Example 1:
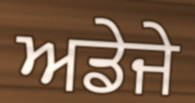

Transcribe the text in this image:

ਅਡੇਜੇ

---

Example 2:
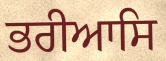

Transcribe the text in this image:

ਭਰੀਆਸਿ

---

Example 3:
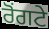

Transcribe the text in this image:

ਰੋੰਗਟੇ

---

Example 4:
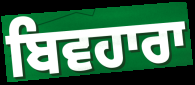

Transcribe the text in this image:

ਬਿਵਹਾਰਾ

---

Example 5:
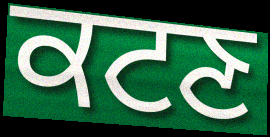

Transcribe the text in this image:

ਕਟਣ